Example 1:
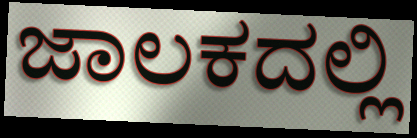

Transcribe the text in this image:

ಜಾಲಕದಲ್ಲಿ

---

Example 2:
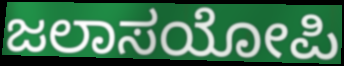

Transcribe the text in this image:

ಜಲಾಸಯೋಪಿ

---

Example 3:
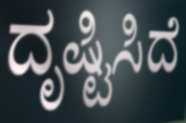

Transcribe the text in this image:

ದೃಷ್ಟಿಸಿದೆ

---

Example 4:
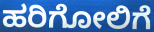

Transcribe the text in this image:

ಹರಿಗೋಲಿಗೆ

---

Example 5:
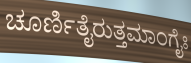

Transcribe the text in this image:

ಚೂರ್ಣಿತೈರುತ್ತಮಾಂಗೈಃ